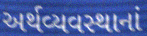
અર્થવ્યવસ્થાનાં